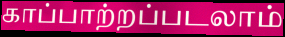
காப்பாற்றப்படலாம்